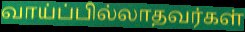
வாய்ப்பில்லாதவர்கள்